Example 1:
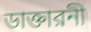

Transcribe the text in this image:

ডাক্তারনী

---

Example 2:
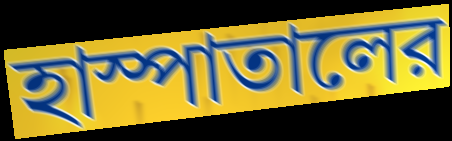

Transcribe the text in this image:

হাস্পাতালের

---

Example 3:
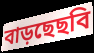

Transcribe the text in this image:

বাড়ছেছবি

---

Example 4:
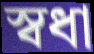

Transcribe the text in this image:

স্বধা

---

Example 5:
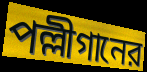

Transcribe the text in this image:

পল্লীগানের